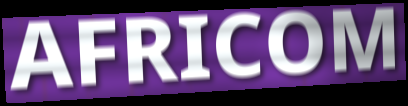
AFRICOM